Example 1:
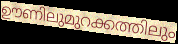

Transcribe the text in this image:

ഊണിലുമുറക്കത്തിലും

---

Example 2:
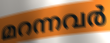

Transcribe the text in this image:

മറന്നവർ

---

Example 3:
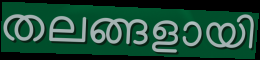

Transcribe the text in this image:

തലങ്ങളായി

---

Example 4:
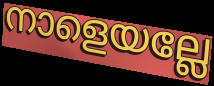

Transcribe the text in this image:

നാളെയല്ലേ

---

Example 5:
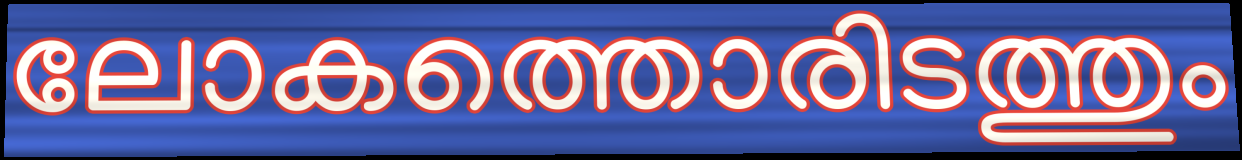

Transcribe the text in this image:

ലോകത്തൊരിടത്തും